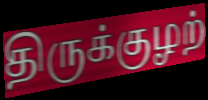
திருக்குழற்